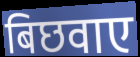
बिछवाए